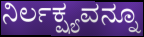
ನಿರ್ಲಕ್ಷ್ಯವನ್ನೂ